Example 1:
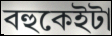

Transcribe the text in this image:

বহুকেইটা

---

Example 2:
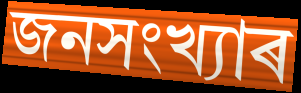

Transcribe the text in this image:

জনসংখ্যাৰ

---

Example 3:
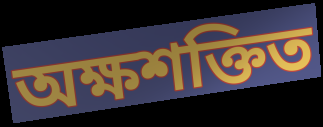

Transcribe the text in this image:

অক্ষশক্তিত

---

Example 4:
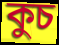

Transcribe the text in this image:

কুচ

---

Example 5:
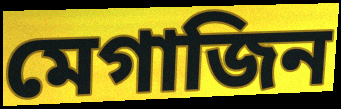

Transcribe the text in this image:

মেগাজিন